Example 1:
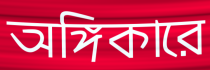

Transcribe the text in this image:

অঙ্গিকারে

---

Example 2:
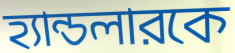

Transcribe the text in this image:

হ্যান্ডলারকে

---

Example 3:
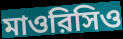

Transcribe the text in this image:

মাওরিসিও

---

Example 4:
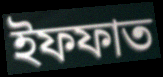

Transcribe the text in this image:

ইফফাত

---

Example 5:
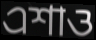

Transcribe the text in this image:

এশাও